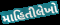
માહિતીલેખો